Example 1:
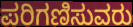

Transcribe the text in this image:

ಪರಿಗಣಿಸುವರು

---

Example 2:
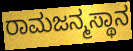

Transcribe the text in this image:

ರಾಮಜನ್ಮಸ್ಥಾನ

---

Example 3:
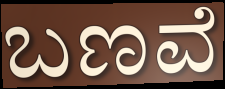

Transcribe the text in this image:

ಬಣವೆ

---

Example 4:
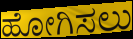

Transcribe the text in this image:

ಹೋಗಿಸಲು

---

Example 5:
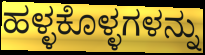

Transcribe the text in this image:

ಹಳ್ಳಕೊಳ್ಳಗಳನ್ನು